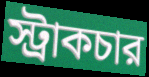
স্ট্রাকচার